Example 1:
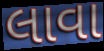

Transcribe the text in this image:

લાવા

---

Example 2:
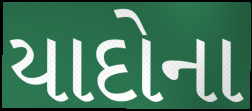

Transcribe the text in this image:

યાદોના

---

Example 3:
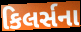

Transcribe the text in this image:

કિલર્સના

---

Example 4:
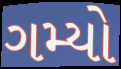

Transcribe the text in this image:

ગમ્યો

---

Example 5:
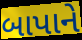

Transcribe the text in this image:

બાપાને